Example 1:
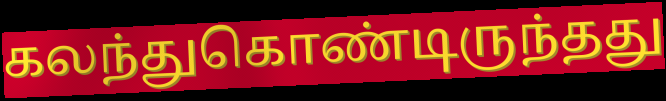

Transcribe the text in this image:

கலந்துகொண்டிருந்தது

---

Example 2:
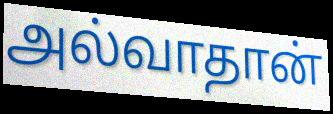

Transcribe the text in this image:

அல்வாதான்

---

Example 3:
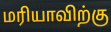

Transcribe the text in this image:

மரியாவிற்கு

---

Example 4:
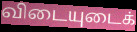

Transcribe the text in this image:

விடையுடைக்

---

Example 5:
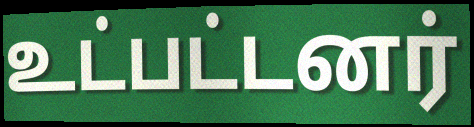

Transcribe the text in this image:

உட்பட்டனர்